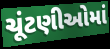
ચૂંટણીઓમાં